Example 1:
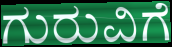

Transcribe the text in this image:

ಗುರುವಿಗೆ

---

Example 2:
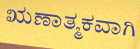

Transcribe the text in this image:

ಋಣಾತ್ಮಕವಾಗಿ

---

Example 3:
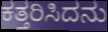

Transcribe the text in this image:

ಕತ್ತರಿಸಿದನು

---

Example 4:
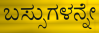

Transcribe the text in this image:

ಬಸ್ಸುಗಳನ್ನೇ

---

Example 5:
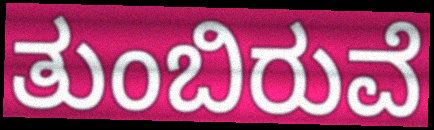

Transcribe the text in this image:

ತುಂಬಿರುವೆ